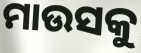
ମାଉସକୁ